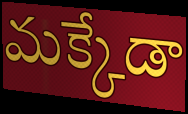
మక్కేడా